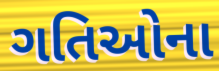
ગતિઓના